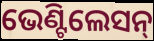
ଭେଣ୍ଟିଲେସନ୍